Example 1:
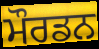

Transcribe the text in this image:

ਮੌਰਡਨ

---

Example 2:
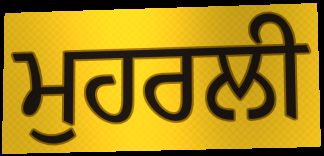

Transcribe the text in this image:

ਮੁਹਰਲੀ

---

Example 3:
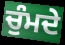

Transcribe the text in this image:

ਚੁੰਮਦੇ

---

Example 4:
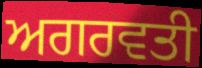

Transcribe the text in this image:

ਅਗਰਵਤੀ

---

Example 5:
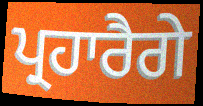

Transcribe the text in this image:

ਪ੍ਰਹਾਰੈਗੇ